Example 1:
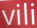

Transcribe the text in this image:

vili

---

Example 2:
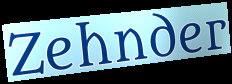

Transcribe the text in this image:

Zehnder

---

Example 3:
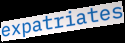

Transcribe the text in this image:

expatriates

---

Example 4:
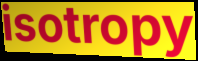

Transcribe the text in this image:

isotropy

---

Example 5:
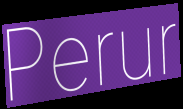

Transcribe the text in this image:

Perur